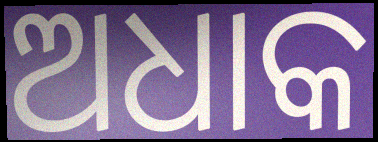
ଅଧାକ